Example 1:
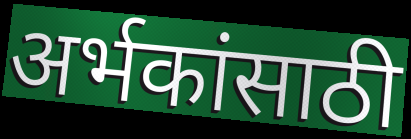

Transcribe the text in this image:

अर्भकांसाठी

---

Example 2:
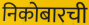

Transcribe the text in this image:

निकोबारची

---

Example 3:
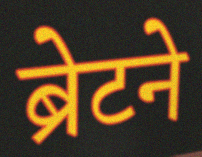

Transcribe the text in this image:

ब्रेटने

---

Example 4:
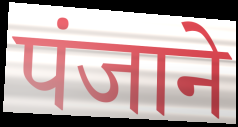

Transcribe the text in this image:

पंजाने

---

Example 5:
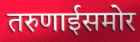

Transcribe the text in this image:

तरुणाईसमोर